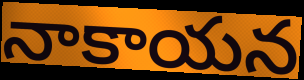
నాకాయన